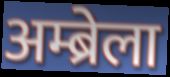
अम्‍ब्रेला